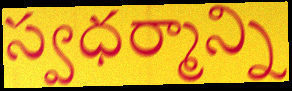
స్వధర్మాన్ని